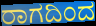
ರಾಗದಿಂದ